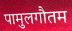
पामुलगौतम